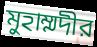
মুহাম্মদীর